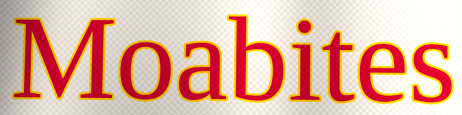
Moabites